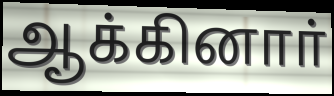
ஆக்கினார்